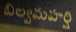
బిల్వమహర్షి